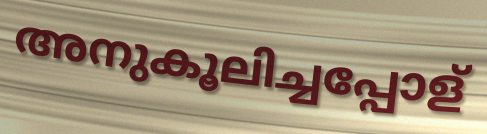
അനുകൂലിച്ചപ്പോള്